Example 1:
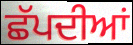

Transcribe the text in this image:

ਛੱਪਦੀਆਂ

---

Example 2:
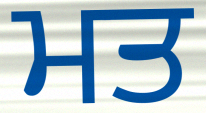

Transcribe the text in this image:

ਮਤ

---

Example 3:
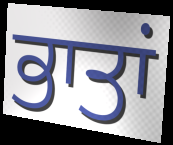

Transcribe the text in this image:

ਭਾਤਾਂ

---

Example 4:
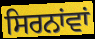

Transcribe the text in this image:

ਸਿਰਨਾਂਵਾਂ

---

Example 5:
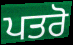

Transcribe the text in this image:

ਪਤਰੋ